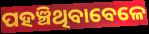
ପହଞ୍ଚିଥିବାବେଳେ